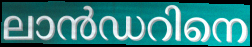
ലാൻഡറിനെ